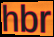
hbr